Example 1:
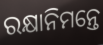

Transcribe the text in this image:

ରକ୍ଷାନିମନ୍ତେ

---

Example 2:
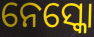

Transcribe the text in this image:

ନେସ୍କୋ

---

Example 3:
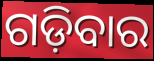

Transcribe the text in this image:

ଗଡ଼ିବାର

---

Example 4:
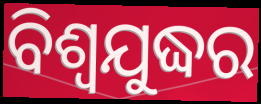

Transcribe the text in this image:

ବିଶ୍ବଯୁଦ୍ଧର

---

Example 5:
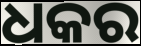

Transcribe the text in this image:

ଧକର